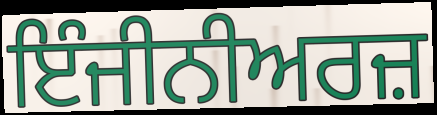
ਇੰਜੀਨੀਅਰਜ਼